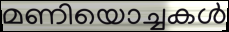
മണിയൊച്ചകൾ